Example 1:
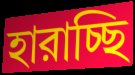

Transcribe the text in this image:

হারাচ্ছি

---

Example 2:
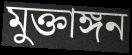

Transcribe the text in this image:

মুক্তাঙ্গন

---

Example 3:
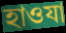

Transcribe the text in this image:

হাওযা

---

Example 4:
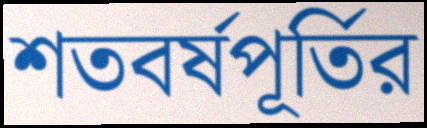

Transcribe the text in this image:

শতবর্ষপূর্তির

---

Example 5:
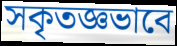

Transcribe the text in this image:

সকৃতজ্ঞভাবে